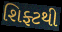
શિફ્ટથી